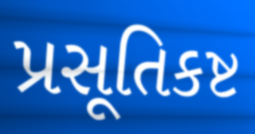
પ્રસૂતિકષ્ટ